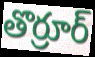
తొర్రూర్